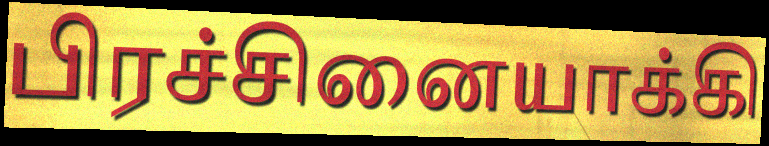
பிரச்சினையாக்கி